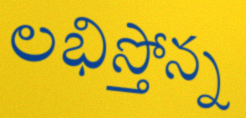
లభిస్తోన్న